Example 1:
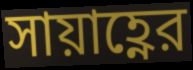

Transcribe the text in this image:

সায়াহ্ণের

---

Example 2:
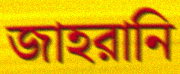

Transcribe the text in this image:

জাহরানি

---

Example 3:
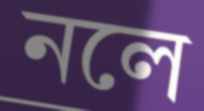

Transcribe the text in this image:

নলে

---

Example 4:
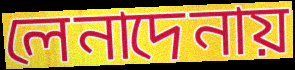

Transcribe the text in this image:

লেনাদেনায়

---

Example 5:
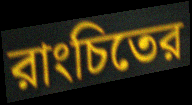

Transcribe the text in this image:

রাংচিতের